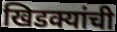
खिडक्यांची